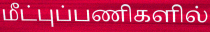
மீட்புப்பணிகளில்